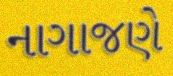
નાગાજણે